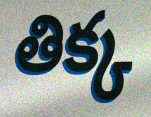
తిక్క